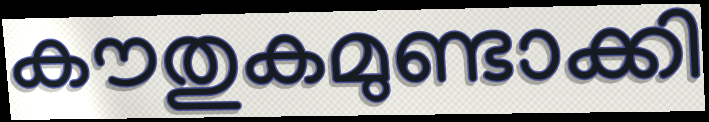
കൗതുകമുണ്ടാക്കി